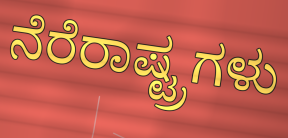
ನೆರೆರಾಷ್ಟ್ರಗಳು